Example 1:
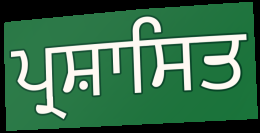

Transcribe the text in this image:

ਪ੍ਰਸ਼ਾਸਿਤ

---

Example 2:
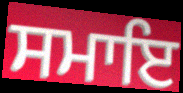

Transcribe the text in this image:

ਸਮਾਇ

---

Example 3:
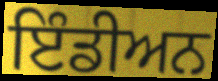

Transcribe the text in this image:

ਇੰਡੀਅਨ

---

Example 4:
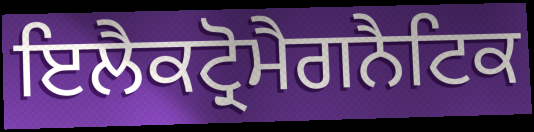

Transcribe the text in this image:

ਇਲੈਕਟ੍ਰੋਮੈਗਨੈਟਿਕ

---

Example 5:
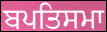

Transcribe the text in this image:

ਬਪਤਿਸਮਾ